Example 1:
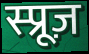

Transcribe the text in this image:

स्प्रूज़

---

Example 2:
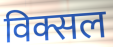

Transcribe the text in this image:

विक्सल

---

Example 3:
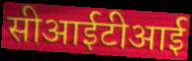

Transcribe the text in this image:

सीआईटीआई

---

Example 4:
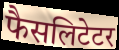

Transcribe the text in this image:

फैसलिटेटर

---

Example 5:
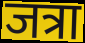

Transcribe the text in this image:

जत्रा